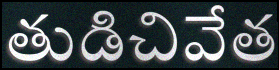
తుడిచివేత